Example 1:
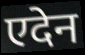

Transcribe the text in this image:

एदेन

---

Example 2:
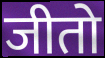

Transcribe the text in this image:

जीतो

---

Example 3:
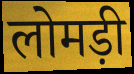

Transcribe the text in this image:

लोमड़ी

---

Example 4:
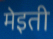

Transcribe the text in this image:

मेइती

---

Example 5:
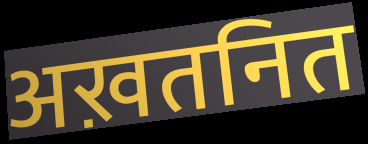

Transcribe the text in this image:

अख़तनित